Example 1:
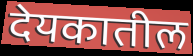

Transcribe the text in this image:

देयकातील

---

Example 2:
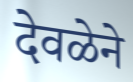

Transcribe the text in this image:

देवळेने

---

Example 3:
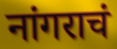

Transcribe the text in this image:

नांगराचं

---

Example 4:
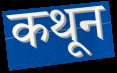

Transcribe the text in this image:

कथून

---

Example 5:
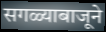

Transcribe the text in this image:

सगळ्याबाजूने